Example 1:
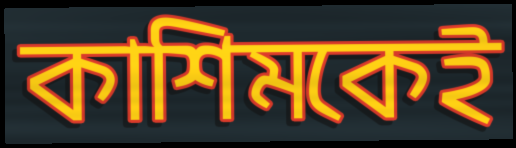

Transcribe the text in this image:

কাশিমকেই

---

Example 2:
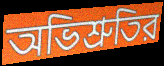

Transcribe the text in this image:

অভিশ্রুতির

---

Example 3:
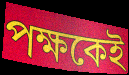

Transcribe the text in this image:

পক্ষকেই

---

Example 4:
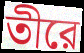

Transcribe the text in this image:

তীরে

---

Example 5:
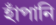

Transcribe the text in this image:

হাঁপানি